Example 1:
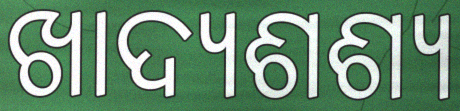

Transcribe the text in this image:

ଖାଦ୍ୟଶଶ୍ୟ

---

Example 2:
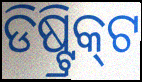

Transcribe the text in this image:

ଡିଷ୍ଟ୍ରିକ୍‌ଟ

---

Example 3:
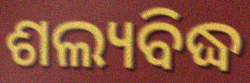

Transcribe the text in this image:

ଶଲ୍ୟବିଦ୍ଧ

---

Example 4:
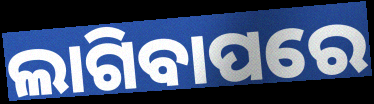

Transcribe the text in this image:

ଲାଗିବାପରେ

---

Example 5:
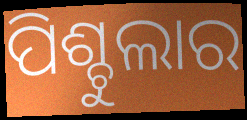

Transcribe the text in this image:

ପିଶ୍ଚୁଲାର